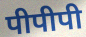
पीपीपी